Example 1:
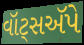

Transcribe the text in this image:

વૉટ્સઍપે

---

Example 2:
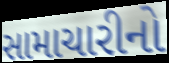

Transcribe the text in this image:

સામાચારીનો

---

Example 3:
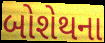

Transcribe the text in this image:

બોશેથના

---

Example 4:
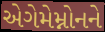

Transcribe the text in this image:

એગેમેમ્નોનને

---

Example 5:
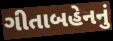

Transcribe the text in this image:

ગીતાબહેનનું